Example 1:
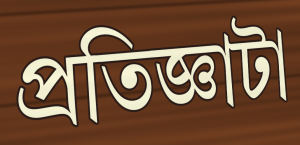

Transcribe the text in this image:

প্রতিজ্ঞাটা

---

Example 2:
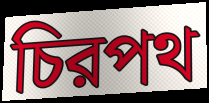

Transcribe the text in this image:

চিরপথ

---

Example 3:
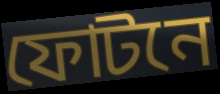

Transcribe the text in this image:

ফোটনে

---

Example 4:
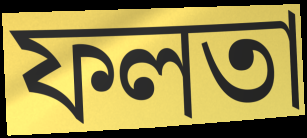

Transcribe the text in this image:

ফলতা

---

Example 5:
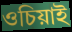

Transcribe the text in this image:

ওচিয়াই